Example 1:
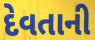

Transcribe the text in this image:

દેવતાની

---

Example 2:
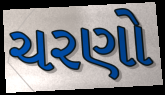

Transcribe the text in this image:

ચરણો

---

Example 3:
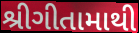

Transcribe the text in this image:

શ્રીગીતામાથી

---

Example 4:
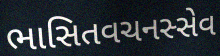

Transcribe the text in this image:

ભાસિતવચનસ્સેવ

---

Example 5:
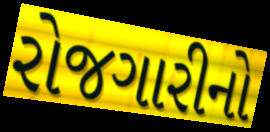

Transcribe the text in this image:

રોજગારીનો